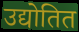
उद्योतित